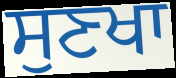
ਸੁਣਖਾ